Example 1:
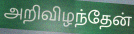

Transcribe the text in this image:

அறிவிழந்தேன்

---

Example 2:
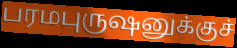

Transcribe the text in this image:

பரமபுருஷனுக்குச்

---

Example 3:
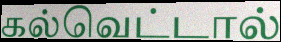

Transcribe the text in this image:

கல்வெட்டால்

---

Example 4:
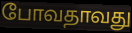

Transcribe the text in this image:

போவதாவது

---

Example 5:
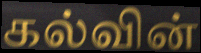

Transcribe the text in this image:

கல்வின்